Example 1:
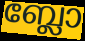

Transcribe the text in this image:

ബ്ലോ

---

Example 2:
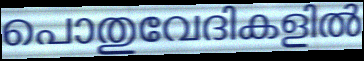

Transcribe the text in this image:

പൊതുവേദികളിൽ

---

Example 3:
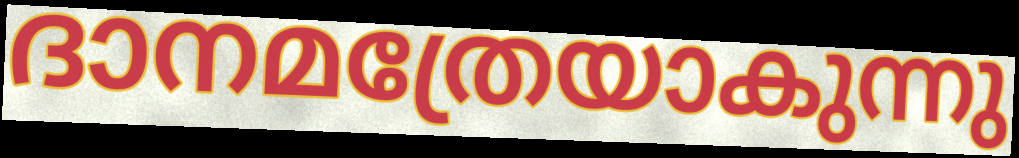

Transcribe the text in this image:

ദാനമത്രേയാകുന്നു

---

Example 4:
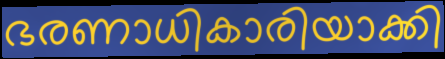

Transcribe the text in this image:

ഭരണാധികാരിയാക്കി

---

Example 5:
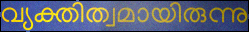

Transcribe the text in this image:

വ്യക്തിത്വമായിരുന്നു